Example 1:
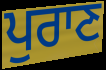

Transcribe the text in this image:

ਪੁਰਾਣ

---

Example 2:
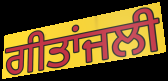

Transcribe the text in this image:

ਗੀਤਾਂਜਲੀ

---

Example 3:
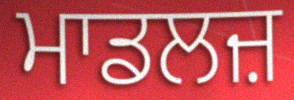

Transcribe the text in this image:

ਮਾਡਲਜ਼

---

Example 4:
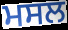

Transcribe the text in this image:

ਮਸਲ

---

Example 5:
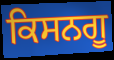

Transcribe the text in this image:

ਕਿਸਨਗੂ